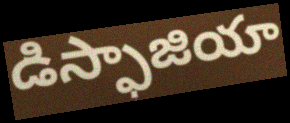
డిస్ఫాజియా